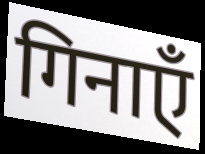
गिनाएँ